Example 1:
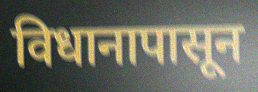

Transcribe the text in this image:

विधानापासून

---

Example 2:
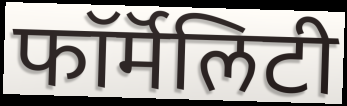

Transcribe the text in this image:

फॉर्मॅलिटी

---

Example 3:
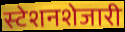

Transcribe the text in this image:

स्टेशनशेजारी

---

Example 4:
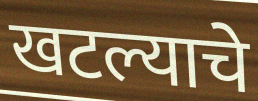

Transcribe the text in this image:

खटल्याचे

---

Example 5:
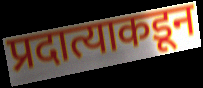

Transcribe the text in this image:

प्रदात्याकडून